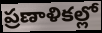
ప్రణాళికల్లో